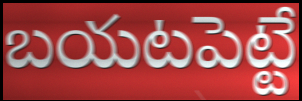
బయటపెట్టే